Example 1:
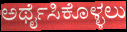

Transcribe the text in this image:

ಅರ್ಥೈಸಿಕೊಳ್ಳಲು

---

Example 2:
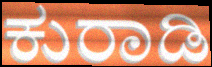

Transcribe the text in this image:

ಕುರಾಡಿ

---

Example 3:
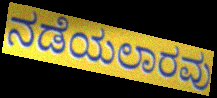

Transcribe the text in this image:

ನಡೆಯಲಾರವು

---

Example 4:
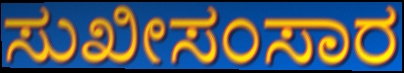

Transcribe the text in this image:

ಸುಖೀಸಂಸಾರ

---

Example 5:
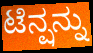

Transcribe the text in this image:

ಟೆನ್ಷನ್ನು